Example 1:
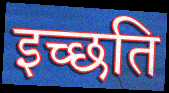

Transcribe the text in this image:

इच्छति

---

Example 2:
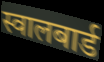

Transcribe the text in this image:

स्वालबार्ड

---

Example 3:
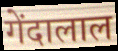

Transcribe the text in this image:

गेंदालाल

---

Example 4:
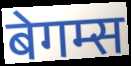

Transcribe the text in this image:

बेगम्स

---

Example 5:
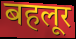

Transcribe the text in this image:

बहलूर